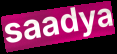
saadya